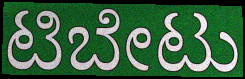
ಟಿಬೇಟು